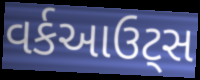
વર્કઆઉટ્સ